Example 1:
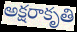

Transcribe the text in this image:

అక్షరాకృతి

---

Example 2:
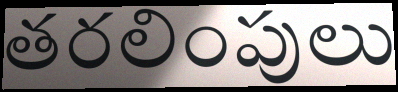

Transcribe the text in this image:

తరలింపులు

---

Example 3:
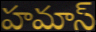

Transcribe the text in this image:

హమాస్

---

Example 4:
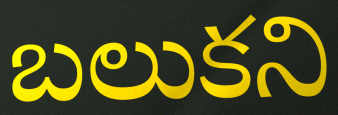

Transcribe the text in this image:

బలుకని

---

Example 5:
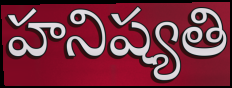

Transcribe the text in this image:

హనిష్యతి